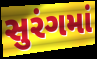
સુરંગમાં